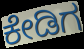
ಕೇಡಿಗ